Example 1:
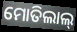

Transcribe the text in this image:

ମୋତିଲାଲ୍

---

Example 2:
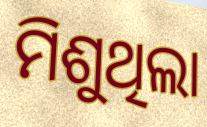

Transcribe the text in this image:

ମିଶୁଥିଲା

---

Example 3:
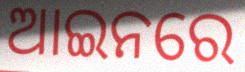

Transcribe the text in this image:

ଆଇନରେ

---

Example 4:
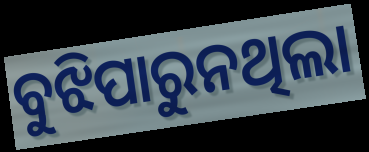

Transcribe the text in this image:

ବୁଝିପାରୁନଥିଲା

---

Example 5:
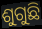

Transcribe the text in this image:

ଶୁଗୁଛି